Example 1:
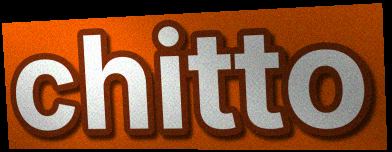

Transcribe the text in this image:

chitto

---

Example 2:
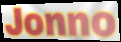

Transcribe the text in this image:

Jonno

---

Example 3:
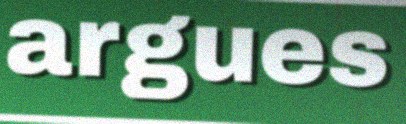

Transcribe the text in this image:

argues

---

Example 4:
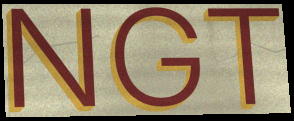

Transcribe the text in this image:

NGT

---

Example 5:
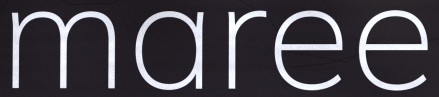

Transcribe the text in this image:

maree